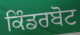
ਕਿੰਡਰਬੋਟ